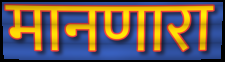
मानणारा